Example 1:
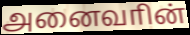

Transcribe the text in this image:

அனைவரின்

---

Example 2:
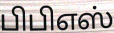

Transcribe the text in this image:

பிபிஎஸ்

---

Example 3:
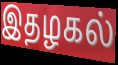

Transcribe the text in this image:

இதழகல்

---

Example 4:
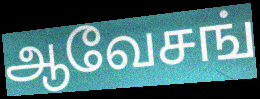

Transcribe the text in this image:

ஆவேசங்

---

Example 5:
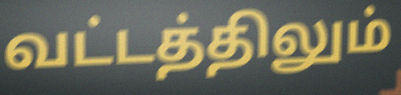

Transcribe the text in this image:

வட்டத்திலும்